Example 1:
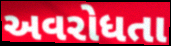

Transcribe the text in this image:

અવરોધતા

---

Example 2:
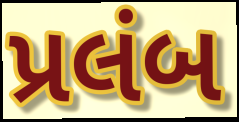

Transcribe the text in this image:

પ્રલંબ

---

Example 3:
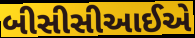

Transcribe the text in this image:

બીસીસીઆઈએ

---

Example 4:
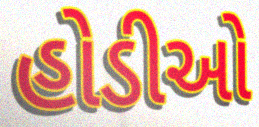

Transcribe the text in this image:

હોડીઓ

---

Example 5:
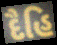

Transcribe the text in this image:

દૈહિ